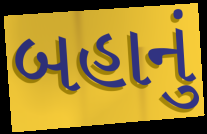
બહાનું